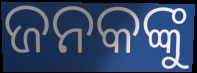
ଜନକଙ୍କୁ